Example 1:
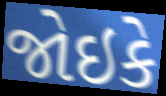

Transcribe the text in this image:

જોઇકે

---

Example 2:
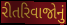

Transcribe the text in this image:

રીતરિવાજોનું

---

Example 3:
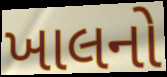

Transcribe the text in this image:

ખાલનો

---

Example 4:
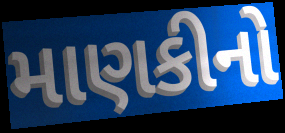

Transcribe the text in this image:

માણકીનો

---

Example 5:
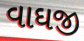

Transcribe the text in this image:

વાઘજી